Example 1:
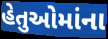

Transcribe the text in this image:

હેતુઓમાંના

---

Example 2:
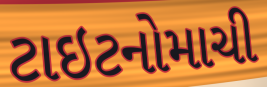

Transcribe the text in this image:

ટાઇટનોમાચી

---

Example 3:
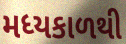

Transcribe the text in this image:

મધ્યકાળથી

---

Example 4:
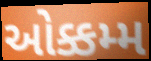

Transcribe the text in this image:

ઓક્કમ્મ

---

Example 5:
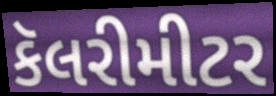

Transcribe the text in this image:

કૅલરીમીટર